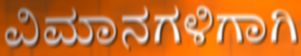
ವಿಮಾನಗಳಿಗಾಗಿ